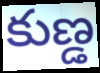
కుణ్డ